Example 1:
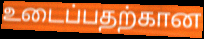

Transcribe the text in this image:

உடைப்பதற்கான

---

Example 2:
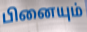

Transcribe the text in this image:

பினையும்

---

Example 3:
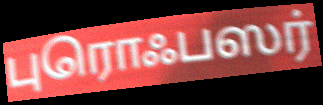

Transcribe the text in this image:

புரொஃபஸர்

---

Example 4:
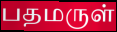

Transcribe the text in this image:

பதமருள்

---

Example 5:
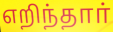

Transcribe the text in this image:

எறிந்தார்